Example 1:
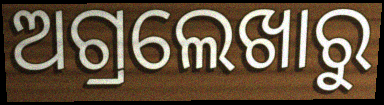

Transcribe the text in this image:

ଅଗ୍ରଲେଖାରୁ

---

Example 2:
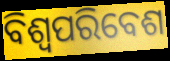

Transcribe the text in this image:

ବିଶ୍ୱପରିବେଶ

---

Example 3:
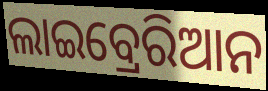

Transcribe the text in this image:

ଲାଇବ୍ରେରିଆନ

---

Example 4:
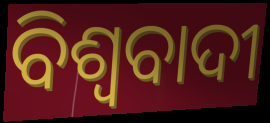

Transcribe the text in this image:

ବିଶ୍ବବାଦୀ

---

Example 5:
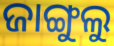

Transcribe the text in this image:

ଜାଙ୍ଗୁଲୁ